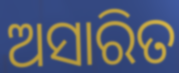
ଅସାରିତ